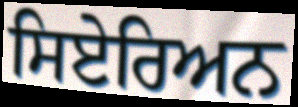
ਸਿਏਰਿਅਨ